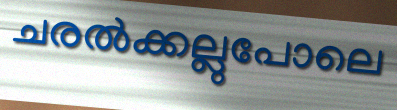
ചരൽക്കല്ലുപോലെ